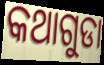
କଥାଗୁଡା